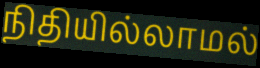
நிதியில்லாமல்